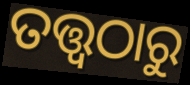
ତତ୍ତ୍ବଠାରୁ